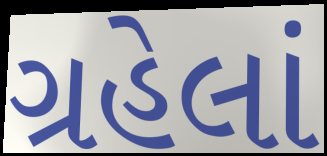
ગ્રહેલાં